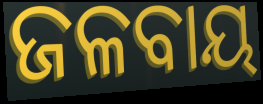
ଜଳବାୟ